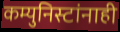
कम्युनिस्टांनाही